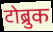
टोब्रुक